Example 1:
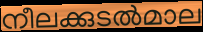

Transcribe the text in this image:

നീലക്കുടൽമാല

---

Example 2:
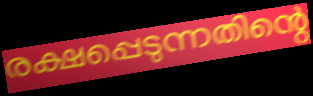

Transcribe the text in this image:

രക്ഷപ്പെടുന്നതിന്റെ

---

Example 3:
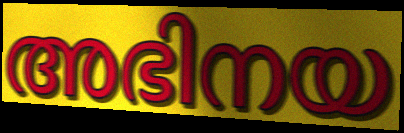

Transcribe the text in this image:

അഭിനയ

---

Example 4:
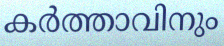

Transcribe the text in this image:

കർത്താവിനും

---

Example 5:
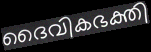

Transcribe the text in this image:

ദൈവികഭക്തി